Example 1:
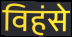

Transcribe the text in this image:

विहंसे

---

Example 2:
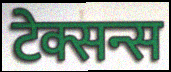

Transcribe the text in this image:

टेक्सन्स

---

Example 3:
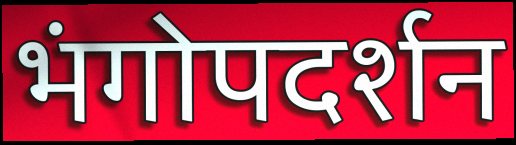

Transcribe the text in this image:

भंगोपदर्शन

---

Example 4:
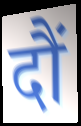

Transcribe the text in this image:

दौं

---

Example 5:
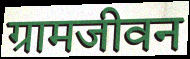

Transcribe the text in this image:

ग्रामजीवन